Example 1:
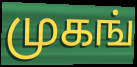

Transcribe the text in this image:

முகங்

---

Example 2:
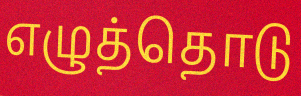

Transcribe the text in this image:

எழுத்தொடு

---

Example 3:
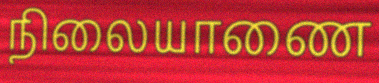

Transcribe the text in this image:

நிலையாணை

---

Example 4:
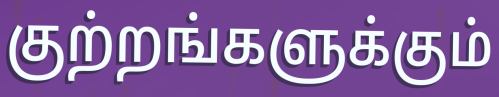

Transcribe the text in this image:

குற்றங்களுக்கும்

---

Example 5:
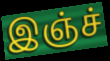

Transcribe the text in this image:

இஞ்ச்